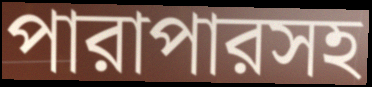
পারাপারসহ